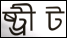
ষ্ট্ৰীট